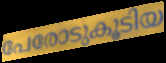
പേരോടുകൂടിയ